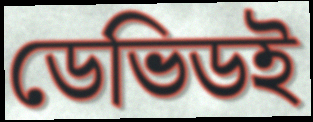
ডেভিডই